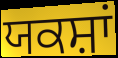
ਯਕਸ਼ਾਂ